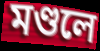
মণ্ডলে